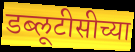
डब्लूटीसीच्या